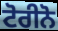
ਟੋਰੀਨੋ